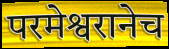
परमेश्वरानेच